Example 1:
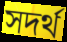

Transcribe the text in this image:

সদর্থ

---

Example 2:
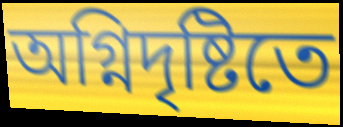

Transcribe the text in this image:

অগ্নিদৃষ্টিতে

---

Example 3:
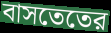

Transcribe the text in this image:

বাসতেতের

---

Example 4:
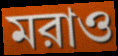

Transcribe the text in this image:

মরাও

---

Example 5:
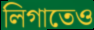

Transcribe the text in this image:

লিগাতেও